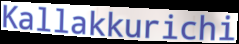
Kallakkurichi